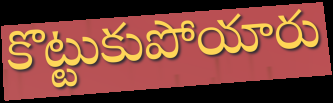
కొట్టుకుపోయారు